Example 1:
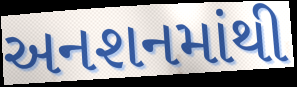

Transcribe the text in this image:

અનશનમાંથી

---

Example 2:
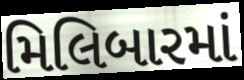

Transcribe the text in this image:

મિલિબારમાં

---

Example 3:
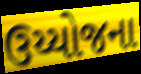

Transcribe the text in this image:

ઉય્યોજના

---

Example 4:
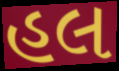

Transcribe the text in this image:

હલ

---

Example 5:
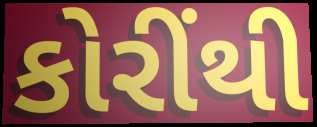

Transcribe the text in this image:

કોરીંથી